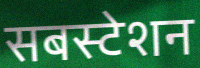
सबस्टेशन